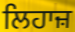
ਲਿਹਾਜ਼